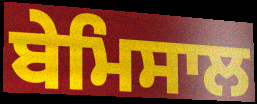
ਬੇਮਿਸਾਲ